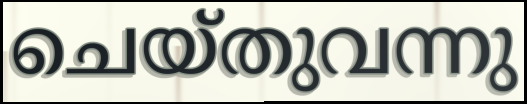
ചെയ്തുവന്നു